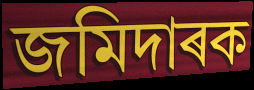
জমিদাৰক